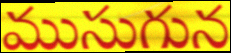
ముసుగున